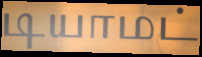
டியாமட்